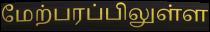
மேற்பரப்பிலுள்ள